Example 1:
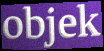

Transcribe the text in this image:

objek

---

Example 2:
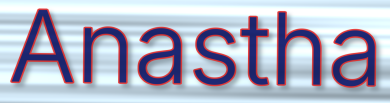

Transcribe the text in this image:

Anastha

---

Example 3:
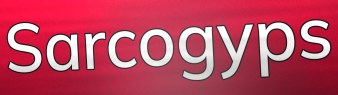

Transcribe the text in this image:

Sarcogyps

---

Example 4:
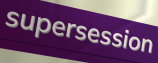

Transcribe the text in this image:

supersession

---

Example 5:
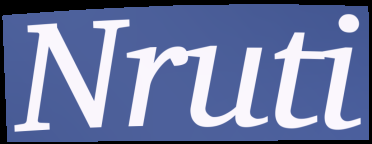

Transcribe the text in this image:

Nruti